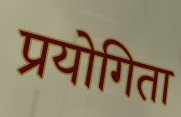
प्रयोगिता